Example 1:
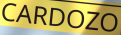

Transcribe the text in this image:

CARDOZO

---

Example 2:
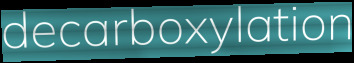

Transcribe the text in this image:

decarboxylation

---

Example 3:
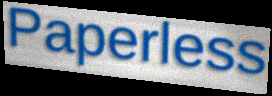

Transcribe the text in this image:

Paperless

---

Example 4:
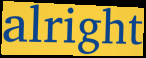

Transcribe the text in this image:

alright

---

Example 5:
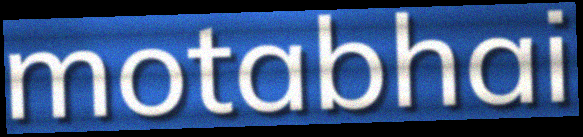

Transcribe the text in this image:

motabhai